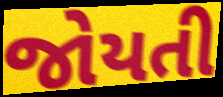
જોયતી